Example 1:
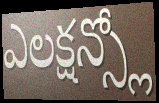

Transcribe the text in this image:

ఎలక్షన్స్లో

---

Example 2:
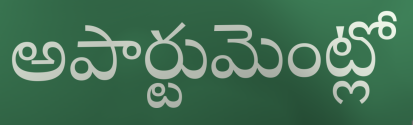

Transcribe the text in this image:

అపార్టుమెంట్లో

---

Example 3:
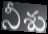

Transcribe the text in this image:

నీశు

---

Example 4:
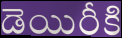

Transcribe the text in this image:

డెయిరీకి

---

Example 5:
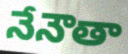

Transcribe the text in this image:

నేనౌతా